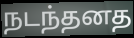
நடந்தனத